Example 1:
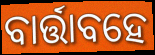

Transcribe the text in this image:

ବାର୍ତ୍ତାବହେ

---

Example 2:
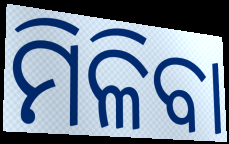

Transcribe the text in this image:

ମିଳିବା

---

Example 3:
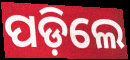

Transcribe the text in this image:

ପଡ଼ିଲେ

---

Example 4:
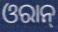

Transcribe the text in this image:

ଓରାନ୍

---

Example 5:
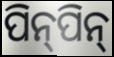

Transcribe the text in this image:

ପିନ୍‍ପିନ୍